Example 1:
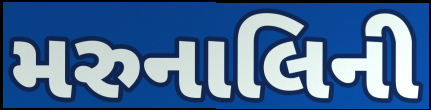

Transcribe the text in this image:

મરુનાલિની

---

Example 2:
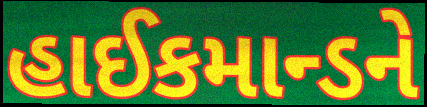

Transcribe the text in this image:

હાઈકમાન્ડને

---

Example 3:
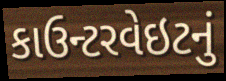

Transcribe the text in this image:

કાઉન્ટરવેઇટનું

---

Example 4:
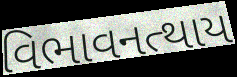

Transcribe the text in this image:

વિભાવનત્થાય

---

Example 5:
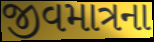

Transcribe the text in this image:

જીવમાત્રના